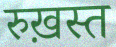
रुख़स्त